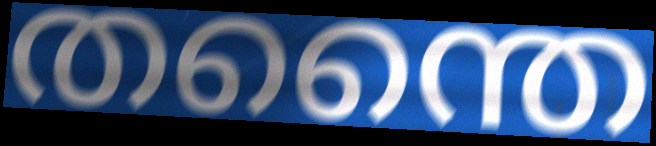
തന്തൈ